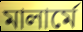
মালার্মে